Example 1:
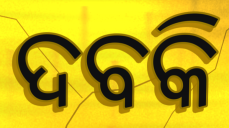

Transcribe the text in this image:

ଦବକି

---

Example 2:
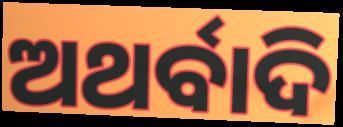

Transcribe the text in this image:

ଅଥର୍ବାଦି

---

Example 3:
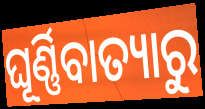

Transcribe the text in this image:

ଘୂର୍ଣ୍ଣିବାତ୍ୟାରୁ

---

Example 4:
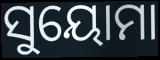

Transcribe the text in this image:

ସୁୟୋମା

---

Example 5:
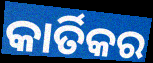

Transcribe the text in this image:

କାର୍ତିକର